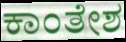
ಕಾಂತೇಶ